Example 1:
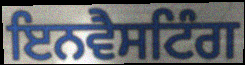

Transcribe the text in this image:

ਇਨਵੈਸਟਿੰਗ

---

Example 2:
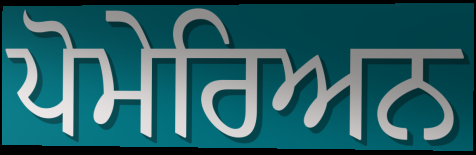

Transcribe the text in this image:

ਪੋਮੇਰਿਅਨ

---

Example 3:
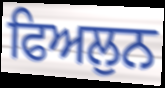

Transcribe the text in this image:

ਫਿਅਲੁਨ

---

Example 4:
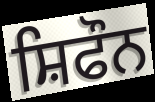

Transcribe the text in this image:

ਸ਼ਿਫੌਨ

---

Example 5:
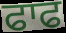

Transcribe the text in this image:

ਫਾਫ